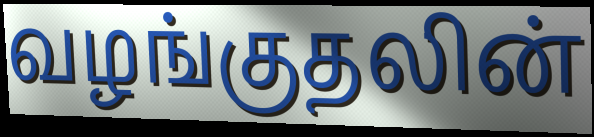
வழங்குதலின்